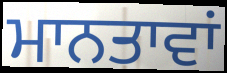
ਮਾਨਤਾਵਾਂ